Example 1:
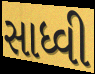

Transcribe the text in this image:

સાધ્વી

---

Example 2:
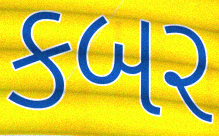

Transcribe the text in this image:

કબર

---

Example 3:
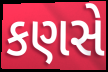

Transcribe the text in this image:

કણસે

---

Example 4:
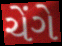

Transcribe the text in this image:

ચેંગે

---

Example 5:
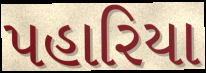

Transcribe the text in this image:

પહારિયા